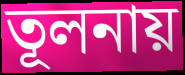
তূলনায়